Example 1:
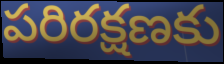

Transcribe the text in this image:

పరిరక్షణకు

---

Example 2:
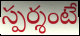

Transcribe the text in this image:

స్పర్శంటే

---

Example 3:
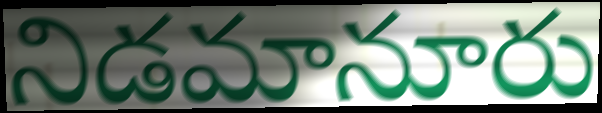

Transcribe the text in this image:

నిడమానూరు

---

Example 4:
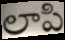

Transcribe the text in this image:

లాపి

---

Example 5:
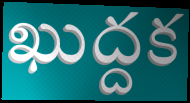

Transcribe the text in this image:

ఖుద్దక